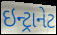
ઇન્ટ્રાનેટ